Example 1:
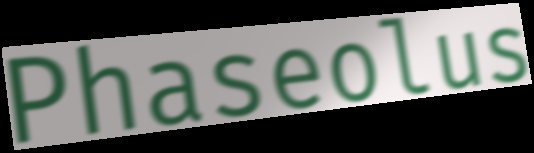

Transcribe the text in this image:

Phaseolus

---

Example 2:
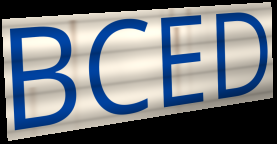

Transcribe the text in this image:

BCED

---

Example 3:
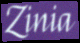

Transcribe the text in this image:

Zinia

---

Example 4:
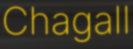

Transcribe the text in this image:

Chagall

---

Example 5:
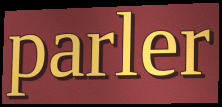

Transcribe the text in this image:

parler